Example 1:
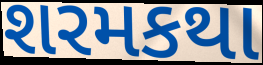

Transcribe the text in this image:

શરમકથા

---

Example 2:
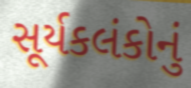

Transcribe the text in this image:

સૂર્યકલંકોનું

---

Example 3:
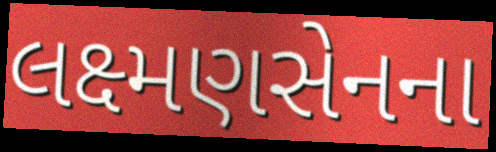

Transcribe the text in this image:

લક્ષ્મણસેનના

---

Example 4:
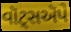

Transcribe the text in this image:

વૉટ્સઍપે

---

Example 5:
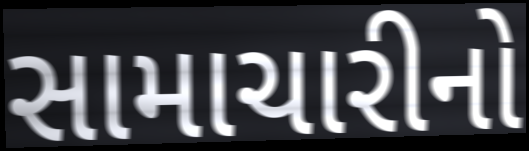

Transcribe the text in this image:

સામાચારીનો